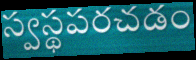
స్వస్థపరచడం